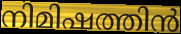
നിമിഷത്തിൻ